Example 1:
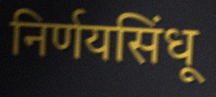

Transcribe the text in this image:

निर्णयसिंधू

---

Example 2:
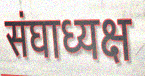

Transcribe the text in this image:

संघाध्यक्ष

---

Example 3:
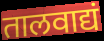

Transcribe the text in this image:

तालवाद्यं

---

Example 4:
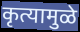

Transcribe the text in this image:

कृत्यामुळे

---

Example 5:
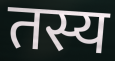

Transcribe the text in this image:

तस्य